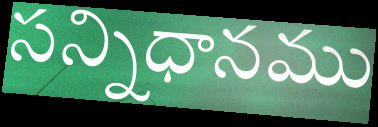
సన్నిధానము